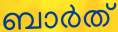
ബാർത്